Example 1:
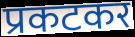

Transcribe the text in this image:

प्रकटकर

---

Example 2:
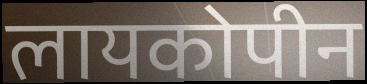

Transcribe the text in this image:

लायकोपीन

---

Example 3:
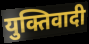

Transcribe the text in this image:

युक्तिवादी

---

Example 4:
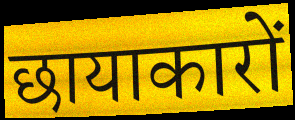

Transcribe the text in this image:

छायाकारों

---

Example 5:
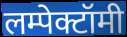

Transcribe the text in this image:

लम्पेक्टॉमी